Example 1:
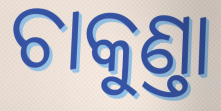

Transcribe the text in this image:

ଚାକୁଣ୍ତା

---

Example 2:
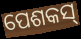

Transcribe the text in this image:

ପେଶକସ୍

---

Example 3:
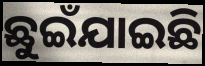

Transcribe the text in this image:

ଛୁଇଁଯାଇଛି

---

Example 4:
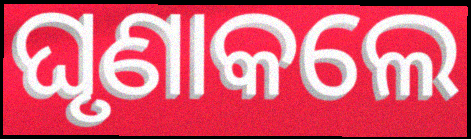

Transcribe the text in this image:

ଘୃଣାକଲେ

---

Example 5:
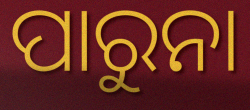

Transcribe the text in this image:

ପାରୁନା